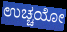
ಉಚ್ಚಯೋ